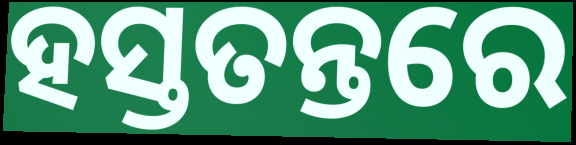
ହସ୍ତତନ୍ତରେ